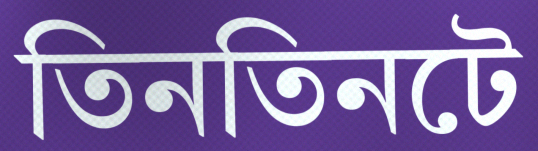
তিনতিনটে